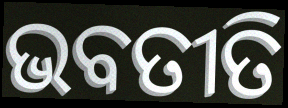
ଭବତୀତି